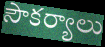
సౌకర్యాలు